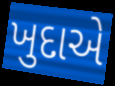
ખુદાએ